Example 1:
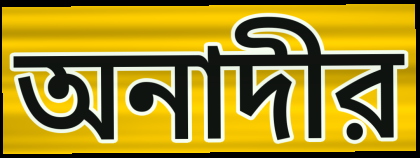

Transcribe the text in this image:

অনাদীর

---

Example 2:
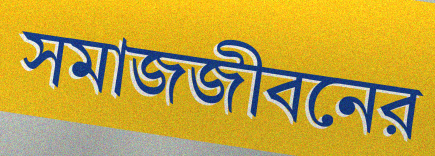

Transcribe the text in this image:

সমাজজীবনের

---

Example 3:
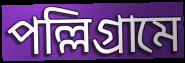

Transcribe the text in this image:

পল্লিগ্রামে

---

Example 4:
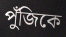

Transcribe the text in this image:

পুঁজিকে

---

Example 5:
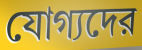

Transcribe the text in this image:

যোগ্যদের